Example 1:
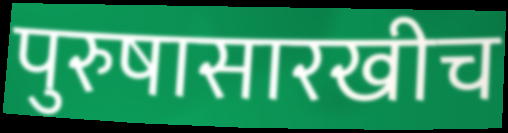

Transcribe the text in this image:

पुरुषासारखीच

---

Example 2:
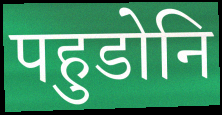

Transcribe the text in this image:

पहुडोनि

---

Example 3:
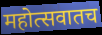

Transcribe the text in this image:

महोत्सवातच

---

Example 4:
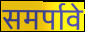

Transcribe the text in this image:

समर्पावे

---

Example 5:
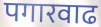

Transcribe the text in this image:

पगारवाढ